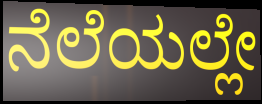
ನೆಲೆಯಲ್ಲೇ